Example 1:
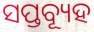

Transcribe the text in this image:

ସପ୍ତବ୍ୟୂହ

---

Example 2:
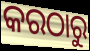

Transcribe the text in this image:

କରଠାରୁ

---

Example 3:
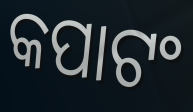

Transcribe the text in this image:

କପାଟଂ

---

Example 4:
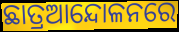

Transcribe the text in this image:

ଛାତ୍ରଆନ୍ଦୋଳନରେ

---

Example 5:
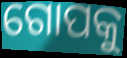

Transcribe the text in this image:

ଗୋପକୁ